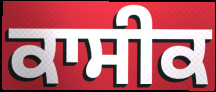
ਕਾਸੀਕ